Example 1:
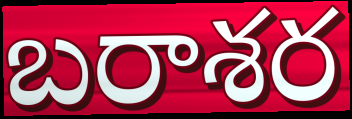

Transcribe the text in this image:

బరాశర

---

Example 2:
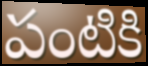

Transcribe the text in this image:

పంటికి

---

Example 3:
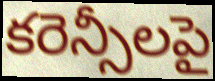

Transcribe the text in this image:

కరెన్సీలపై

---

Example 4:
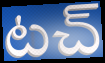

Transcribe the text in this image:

టచ్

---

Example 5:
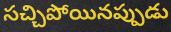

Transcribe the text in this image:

సచ్చిపోయినప్పుడు